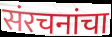
संरचनांचा